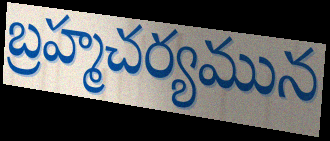
బ్రహ్మచర్యమున